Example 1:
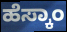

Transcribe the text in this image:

ಹೆಸ್ಕಾಂ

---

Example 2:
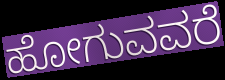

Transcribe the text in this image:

ಹೋಗುವವರೆ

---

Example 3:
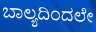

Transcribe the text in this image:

ಬಾಲ್ಯದಿಂದಲೇ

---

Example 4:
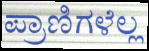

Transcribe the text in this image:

ಪ್ರಾಣಿಗಳೆಲ್ಲ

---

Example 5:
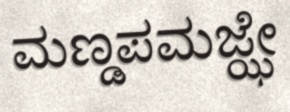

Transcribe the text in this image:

ಮಣ್ಡಪಮಜ್ಝೇ